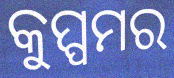
କୁପ୍ପମର